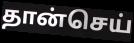
தான்செய்